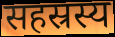
सहस्रस्य